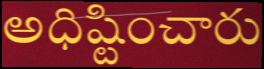
అధిష్టించారు